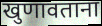
खुणावताना